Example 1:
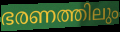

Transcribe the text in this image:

ഭരണത്തിലും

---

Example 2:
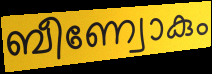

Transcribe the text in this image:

ബീണ്വോകും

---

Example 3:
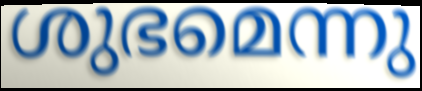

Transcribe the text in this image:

ശുഭമെന്നു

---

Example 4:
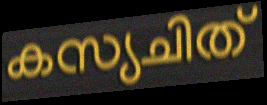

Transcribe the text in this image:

കസ്യചിത്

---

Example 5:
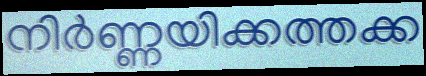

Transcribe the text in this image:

നിർണ്ണയിക്കത്തക്ക